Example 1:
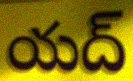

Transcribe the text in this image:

యద్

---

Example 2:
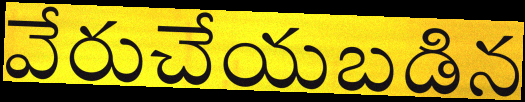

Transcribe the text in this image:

వేరుచేయబడిన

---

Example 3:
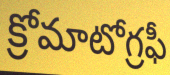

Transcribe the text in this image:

క్రోమాటోగ్రఫీ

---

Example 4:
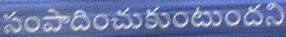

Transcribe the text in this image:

సంపాదించుకుంటుందని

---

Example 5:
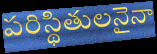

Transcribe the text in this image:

పరిస్థితులనైనా